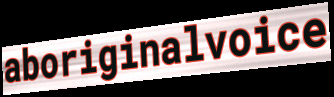
aboriginalvoice